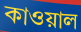
কাওয়াল